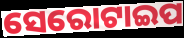
ସେରୋଟାଇପ